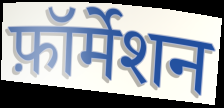
फ़ॉर्मेशन